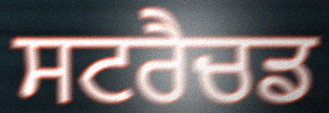
ਸਟਰੈਚਡ